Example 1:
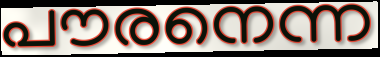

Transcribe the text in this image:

പൗരനെന്ന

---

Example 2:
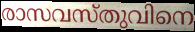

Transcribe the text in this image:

രാസവസ്തുവിനെ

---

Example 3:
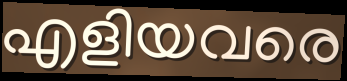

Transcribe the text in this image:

എളിയവരെ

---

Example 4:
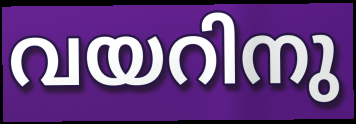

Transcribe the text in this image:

വയറിനു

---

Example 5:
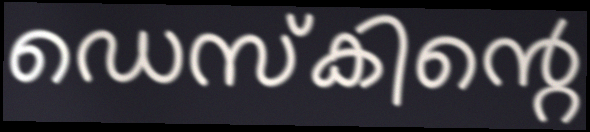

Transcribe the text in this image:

ഡെസ്കിന്റെ